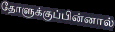
தோளுக்குப்பின்னால்